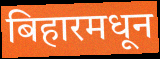
बिहारमधून